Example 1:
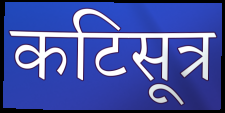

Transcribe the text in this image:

कटिसूत्र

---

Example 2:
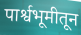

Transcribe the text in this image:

पार्श्वभूमीतून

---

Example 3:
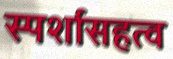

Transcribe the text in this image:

स्पर्शासहत्व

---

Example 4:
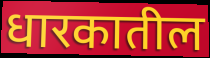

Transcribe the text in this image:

धारकातील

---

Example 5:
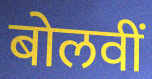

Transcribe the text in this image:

बोलवीं